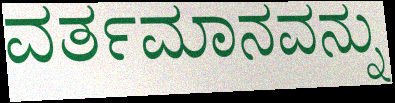
ವರ್ತಮಾನವನ್ನು